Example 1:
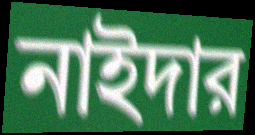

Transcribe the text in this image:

নাইদার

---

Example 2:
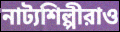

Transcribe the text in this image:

নাট্যশিল্পীরাও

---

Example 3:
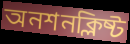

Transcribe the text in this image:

অনশনক্লিষ্ট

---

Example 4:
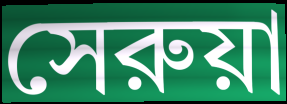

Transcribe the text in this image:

সেরুয়া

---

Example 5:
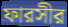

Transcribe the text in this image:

ফারসীর